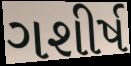
ગશીર્ષ